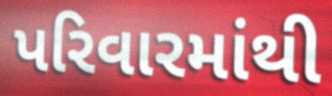
પરિવારમાંથી